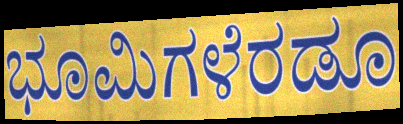
ಭೂಮಿಗಳೆರಡೂ